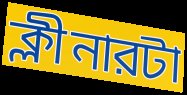
ক্লীনারটা